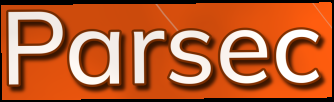
Parsec